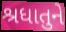
શ્રધાતુને